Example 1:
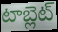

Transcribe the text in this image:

టాబ్లెట్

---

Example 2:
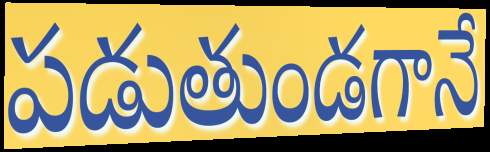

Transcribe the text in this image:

పడుతుండగానే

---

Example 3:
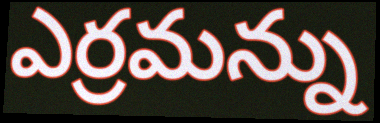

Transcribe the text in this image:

ఎర్రమన్ను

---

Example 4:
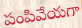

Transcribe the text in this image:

పంపివేయగా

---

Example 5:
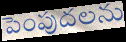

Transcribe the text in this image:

పెంపుదలను